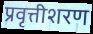
प्रवृत्तीशरण